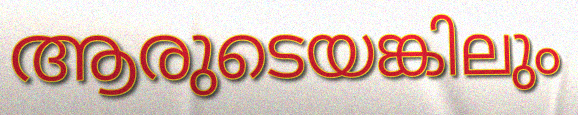
ആരുടെയങ്കിലും